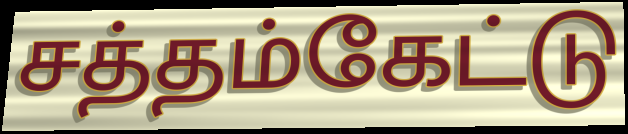
சத்தம்கேட்டு